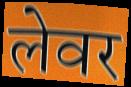
लेवर